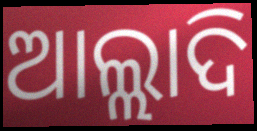
ଆଲ୍ଲାଦି